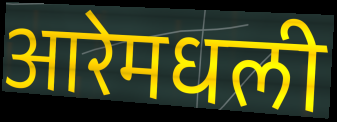
आरेमधली